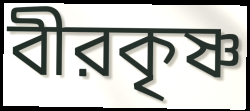
বীরকৃষ্ণ